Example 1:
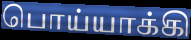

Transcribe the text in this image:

பொய்யாக்கி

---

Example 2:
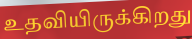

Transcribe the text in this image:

உதவியிருக்கிறது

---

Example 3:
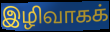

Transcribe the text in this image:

இழிவாகக்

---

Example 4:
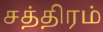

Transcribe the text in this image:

சத்திரம்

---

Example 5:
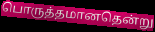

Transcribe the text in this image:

பொருத்தமானதென்று